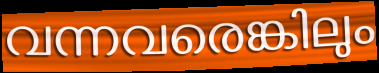
വന്നവരെങ്കിലും